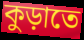
কুড়াতে